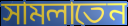
সামলাতেন